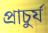
প্রাচুর্য